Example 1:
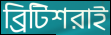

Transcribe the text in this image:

ব্রিটিশরাই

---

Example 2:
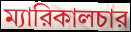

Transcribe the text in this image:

ম্যারিকালচার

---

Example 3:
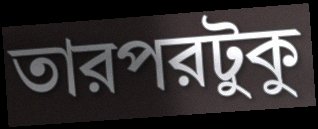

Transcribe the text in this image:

তারপরটুকু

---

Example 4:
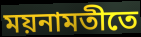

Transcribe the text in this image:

ময়নামতীতে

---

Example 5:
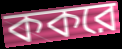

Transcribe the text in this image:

ককরে